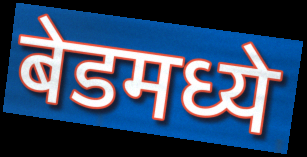
बेडमध्ये